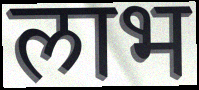
लाभ